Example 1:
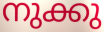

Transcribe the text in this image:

നുക്കു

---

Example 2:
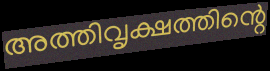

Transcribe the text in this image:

അത്തിവൃക്ഷത്തിന്റെ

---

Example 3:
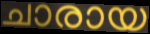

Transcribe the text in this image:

ചാരായ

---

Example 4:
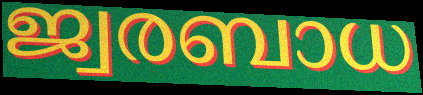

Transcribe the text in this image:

ജ്വരബാധ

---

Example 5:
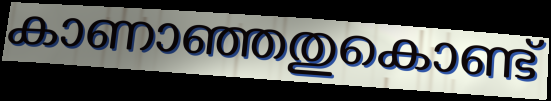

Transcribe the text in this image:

കാണാഞ്ഞതുകൊണ്ട്